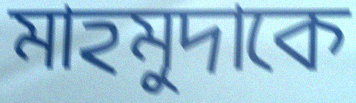
মাহমুদাকে